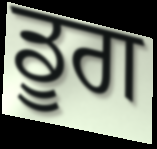
ਡੂਗ